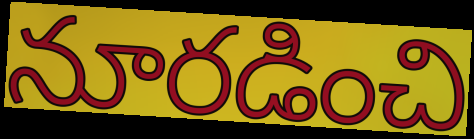
నూరడించి